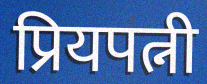
प्रियपत्नी